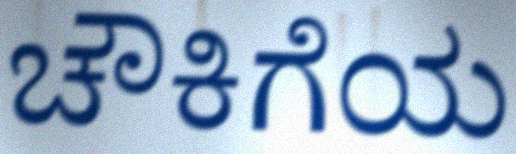
ಚೌಕಿಗೆಯ